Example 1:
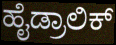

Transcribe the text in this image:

ಹೈಡ್ರಾಲಿಕ್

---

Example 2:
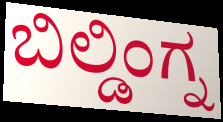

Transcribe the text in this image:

ಬಿಲ್ಡಿಂಗ್ನ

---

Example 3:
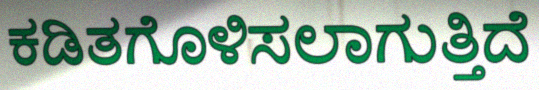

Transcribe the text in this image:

ಕಡಿತಗೊಳಿಸಲಾಗುತ್ತಿದೆ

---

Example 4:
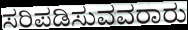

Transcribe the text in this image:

ಸರಿಪಡಿಸುವವರಾರು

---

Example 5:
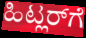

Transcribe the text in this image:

ಹಿಟ್ಲರ್‌ಗೆ